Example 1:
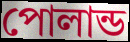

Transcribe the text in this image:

পোলান্ড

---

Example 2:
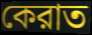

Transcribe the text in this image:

কেরাত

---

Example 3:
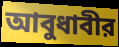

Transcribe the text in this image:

আবুধাবীর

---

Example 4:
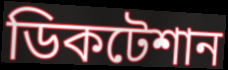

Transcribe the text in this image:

ডিকটেশান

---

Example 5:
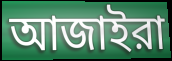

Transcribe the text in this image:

আজাইরা